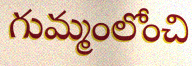
గుమ్మంలోంచి